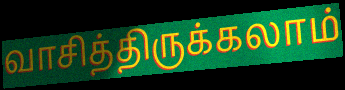
வாசித்திருக்கலாம்